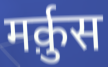
मर्क़ुस